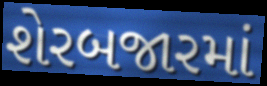
શેરબજારમાં